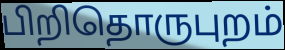
பிறிதொருபுறம்